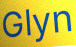
Glyn